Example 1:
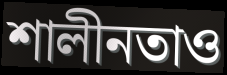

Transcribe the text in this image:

শালীনতাও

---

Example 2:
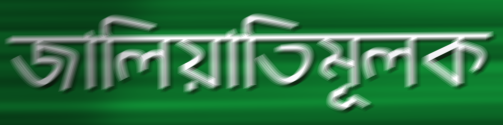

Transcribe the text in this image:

জালিয়াতিমূলক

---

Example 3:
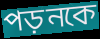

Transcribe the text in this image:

পড়নকে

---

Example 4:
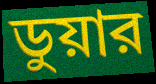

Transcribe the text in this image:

ডুয়ার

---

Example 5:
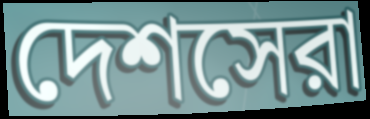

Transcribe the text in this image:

দেশসেরা